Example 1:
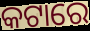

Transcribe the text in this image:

କଟାରେ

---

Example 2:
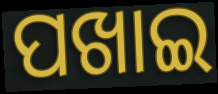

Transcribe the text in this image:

ପଖାଇ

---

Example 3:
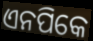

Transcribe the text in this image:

ଏନପିକେ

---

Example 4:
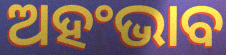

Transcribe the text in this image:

ଅହଂଭାବ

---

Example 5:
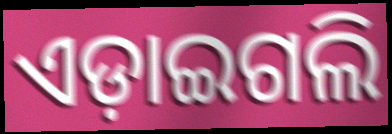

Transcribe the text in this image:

ଏଡ଼ାଇଗଲି